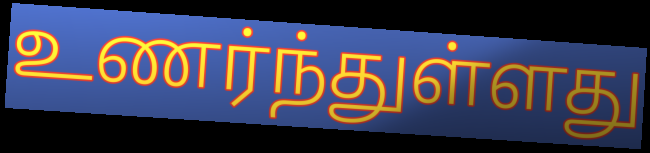
உணர்ந்துள்ளது